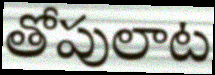
తోపులాట